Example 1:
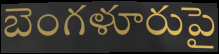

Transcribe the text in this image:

బెంగళూరుపై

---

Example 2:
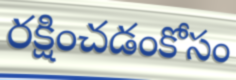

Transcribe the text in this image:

రక్షించడంకోసం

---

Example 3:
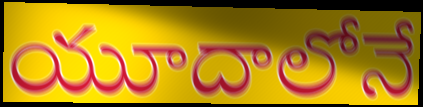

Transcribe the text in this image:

యూదాలోనే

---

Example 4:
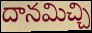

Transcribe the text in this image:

దానమిచ్చి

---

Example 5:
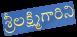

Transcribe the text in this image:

శ్రీలక్ష్మిగారిని